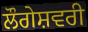
ਲੌਗੇਸ਼ਵਰੀ